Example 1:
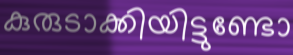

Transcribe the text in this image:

കുരുടാക്കിയിട്ടുണ്ടോ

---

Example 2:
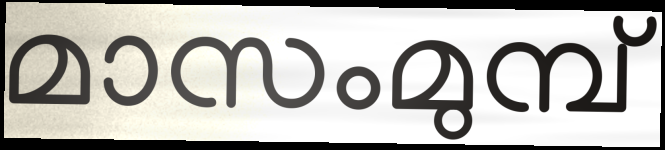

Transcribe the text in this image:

മാസംമുമ്പ്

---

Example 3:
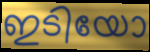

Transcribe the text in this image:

ഇടിയോ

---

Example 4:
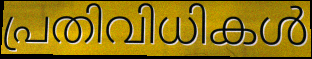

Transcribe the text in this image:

പ്രതിവിധികൾ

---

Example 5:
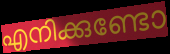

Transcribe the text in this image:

എനിക്കുണ്ടോ